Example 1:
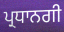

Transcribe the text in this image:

ਪ੍ਰਧਾਨਗੀ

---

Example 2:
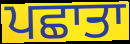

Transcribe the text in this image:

ਪਛਾਤਾ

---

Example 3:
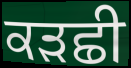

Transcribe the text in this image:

ਕੜਛੀ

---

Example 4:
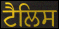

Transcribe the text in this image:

ਟੈਲਿਸ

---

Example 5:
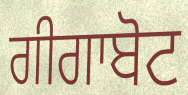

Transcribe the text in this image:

ਗੀਗਾਬੋਟ